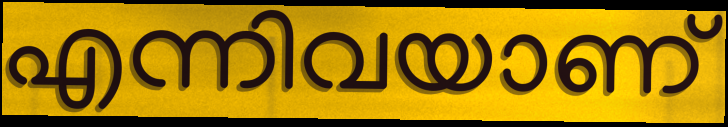
എന്നിവയാണ്